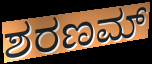
ಶರಣಮ್